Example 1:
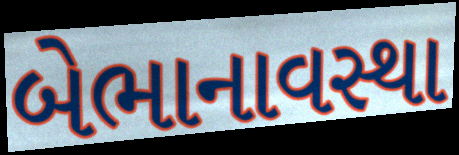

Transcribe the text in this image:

બેભાનાવસ્થા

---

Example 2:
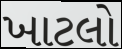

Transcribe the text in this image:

ખાટલો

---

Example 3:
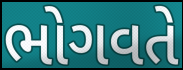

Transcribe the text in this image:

ભોગવતે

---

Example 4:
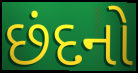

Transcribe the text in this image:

છંદનો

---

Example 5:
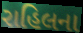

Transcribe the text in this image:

રાહિલના